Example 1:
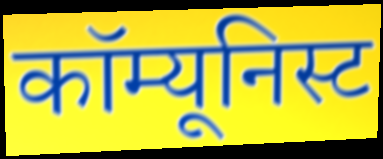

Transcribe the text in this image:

कॉम्यूनिस्ट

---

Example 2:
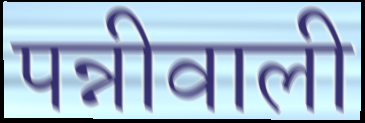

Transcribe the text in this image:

पन्नीवाली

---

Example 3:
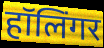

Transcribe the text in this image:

हॉलिंगर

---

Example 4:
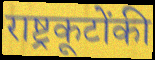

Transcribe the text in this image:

राष्ट्रकूटोंकी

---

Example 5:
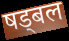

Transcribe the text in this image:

षड्बल